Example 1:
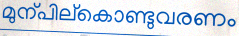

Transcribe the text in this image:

മുന്പില്കൊണ്ടുവരണം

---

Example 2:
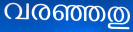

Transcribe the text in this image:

വരഞ്ഞതു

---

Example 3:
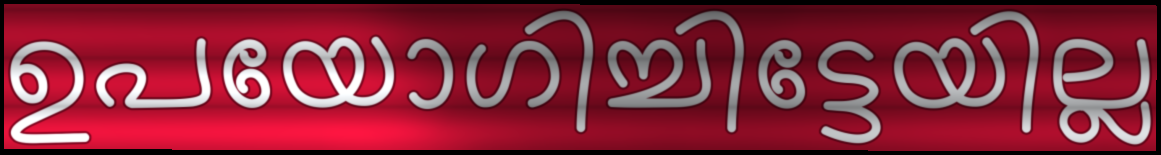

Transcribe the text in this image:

ഉപയോഗിച്ചിട്ടേയില്ല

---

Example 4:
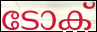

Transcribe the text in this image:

ടോക്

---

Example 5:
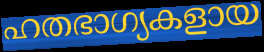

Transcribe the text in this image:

ഹതഭാഗ്യകളായ